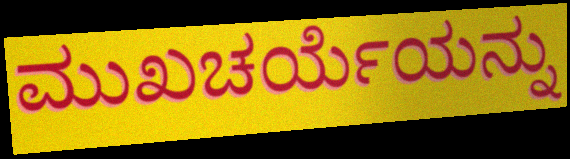
ಮುಖಚರ್ಯೆಯನ್ನು